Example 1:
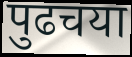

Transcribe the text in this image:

पुढचया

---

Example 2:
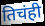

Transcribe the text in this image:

तिचंही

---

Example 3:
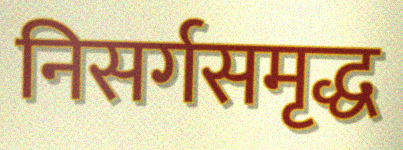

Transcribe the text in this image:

निसर्गसमृद्ध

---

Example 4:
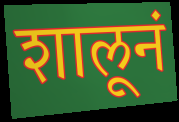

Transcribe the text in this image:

शालूनं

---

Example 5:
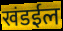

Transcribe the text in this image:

खंडईल